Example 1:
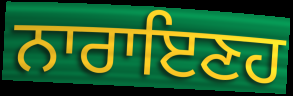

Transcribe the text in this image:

ਨਾਰਾਇਣਹ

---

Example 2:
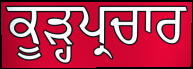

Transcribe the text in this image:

ਕੂੜ੍ਹਪ੍ਰਚਾਰ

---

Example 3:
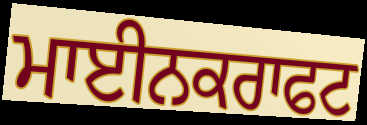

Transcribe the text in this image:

ਮਾਈਨਕਰਾਫਟ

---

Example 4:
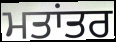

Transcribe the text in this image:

ਮਤਾਂਤਰ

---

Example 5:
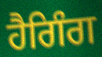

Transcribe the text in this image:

ਹੈਗਿੰਗ